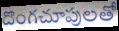
దొంగచూపులతో